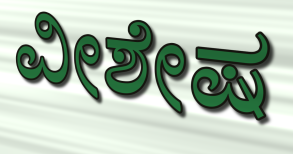
ವೀಶೇಷ